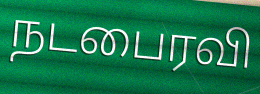
நடபைரவி